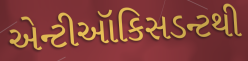
એન્ટીઑકિસડન્ટથી